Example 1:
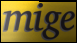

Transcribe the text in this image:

mige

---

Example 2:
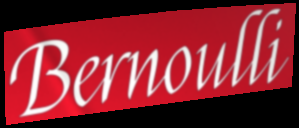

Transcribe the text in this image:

Bernoulli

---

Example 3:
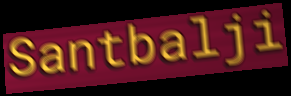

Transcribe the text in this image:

Santbalji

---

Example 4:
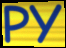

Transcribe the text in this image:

PY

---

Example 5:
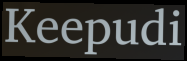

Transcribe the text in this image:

Keepudi